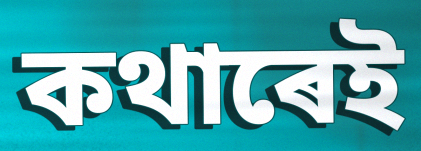
কথাৰেই